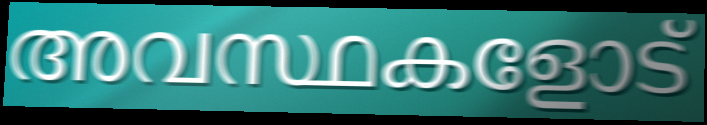
അവസ്ഥകളോട്